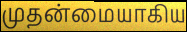
முதன்மையாகிய